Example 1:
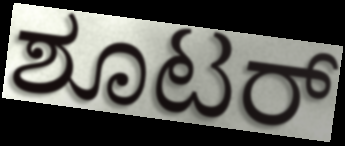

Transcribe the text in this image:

ಶೂಟರ್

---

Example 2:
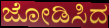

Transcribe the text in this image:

ಜೋಡಿಸಿದ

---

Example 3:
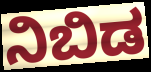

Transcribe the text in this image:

ನಿಬಿಡ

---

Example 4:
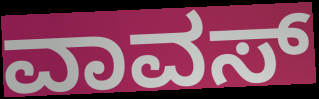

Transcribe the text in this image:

ವಾವಸ್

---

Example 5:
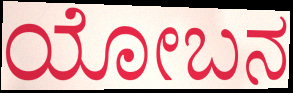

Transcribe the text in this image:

ಯೋಬನ